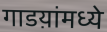
गाडय़ांमध्ये